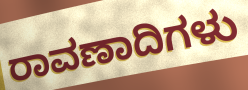
ರಾವಣಾದಿಗಳು